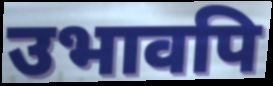
उभावपि